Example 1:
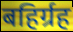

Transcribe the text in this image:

बहिर्ग्रह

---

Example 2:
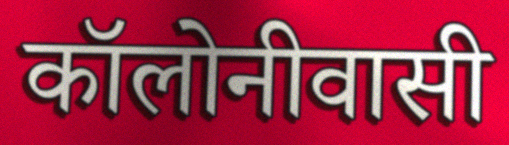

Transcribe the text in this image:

कॉलोनीवासी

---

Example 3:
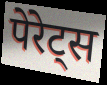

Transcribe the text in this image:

पेरेट्स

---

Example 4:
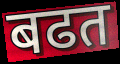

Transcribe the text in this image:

बढत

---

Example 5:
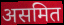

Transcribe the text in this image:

असमित